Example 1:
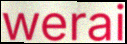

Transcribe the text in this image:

werai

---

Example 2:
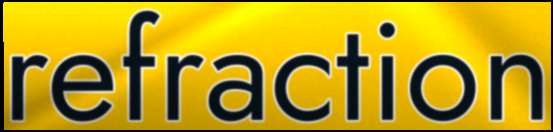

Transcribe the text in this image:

refraction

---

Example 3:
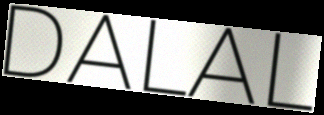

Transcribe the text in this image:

DALAL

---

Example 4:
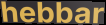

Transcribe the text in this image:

hebbar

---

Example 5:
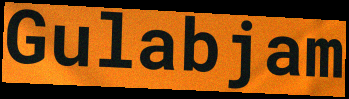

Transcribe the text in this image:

Gulabjam